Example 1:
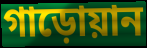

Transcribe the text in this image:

গাড়োয়ান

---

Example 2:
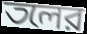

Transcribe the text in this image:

তলের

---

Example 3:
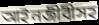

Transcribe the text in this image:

আইনজীবীসহ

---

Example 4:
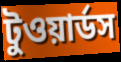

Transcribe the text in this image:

টুওয়ার্ডস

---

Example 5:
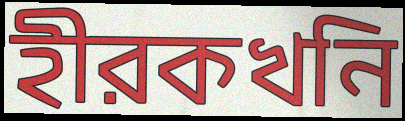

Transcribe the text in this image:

হীরকখনি